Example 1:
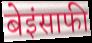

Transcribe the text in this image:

बेइंसाफी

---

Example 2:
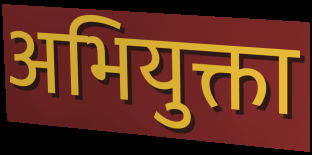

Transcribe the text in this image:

अभियुक्ता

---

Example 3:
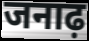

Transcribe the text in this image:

जनाढ़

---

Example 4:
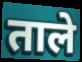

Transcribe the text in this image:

ताले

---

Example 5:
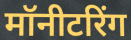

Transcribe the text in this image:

मॉनीटरिंग